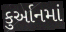
કુર્આનમાં